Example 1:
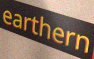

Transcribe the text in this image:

earthern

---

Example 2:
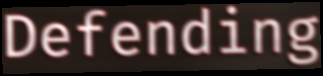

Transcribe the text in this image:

Defending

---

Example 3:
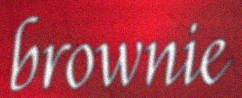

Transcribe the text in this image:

brownie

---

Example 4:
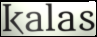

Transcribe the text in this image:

kalas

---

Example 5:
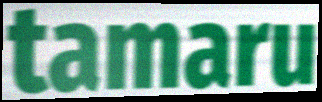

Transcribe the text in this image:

tamaru